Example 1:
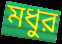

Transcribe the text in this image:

মধুর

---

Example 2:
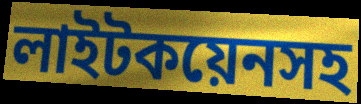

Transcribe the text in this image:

লাইটকয়েনসহ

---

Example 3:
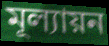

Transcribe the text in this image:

মূল্যায়ন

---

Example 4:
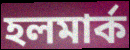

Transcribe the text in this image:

হলমার্ক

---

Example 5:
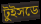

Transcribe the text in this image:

টুইসডে